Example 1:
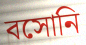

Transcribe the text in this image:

বসোনি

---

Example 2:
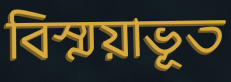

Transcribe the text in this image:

বিস্ময়াভূত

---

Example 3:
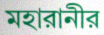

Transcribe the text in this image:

মহারানীর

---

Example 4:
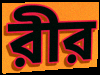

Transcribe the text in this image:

রীর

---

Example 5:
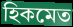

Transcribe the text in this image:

হিকমেত